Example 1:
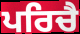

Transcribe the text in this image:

ਪਰਿਚੈ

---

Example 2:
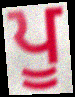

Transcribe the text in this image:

ਪੂ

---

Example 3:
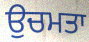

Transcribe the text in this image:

ਉਚਮਤਾ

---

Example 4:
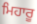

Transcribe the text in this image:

ਮਿਹਾਰੂ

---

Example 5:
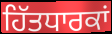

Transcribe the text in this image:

ਹਿੱਤਧਾਰਕਾਂ